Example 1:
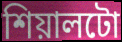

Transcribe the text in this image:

শিয়ালটো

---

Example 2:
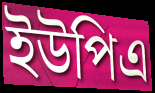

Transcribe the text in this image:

ইউপিএ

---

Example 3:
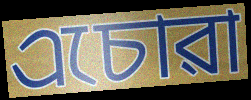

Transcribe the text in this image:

এচোৱা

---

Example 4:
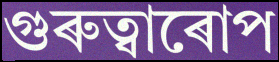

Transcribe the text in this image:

গুৰুত্বাৰোপ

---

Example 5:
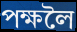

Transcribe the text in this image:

পক্ষলৈ